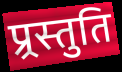
प्र्रस्तुति